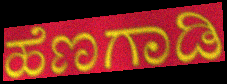
ಹೆಣಗಾಡಿ